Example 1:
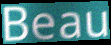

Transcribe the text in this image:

Beau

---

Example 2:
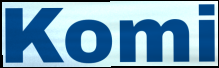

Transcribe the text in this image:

Komi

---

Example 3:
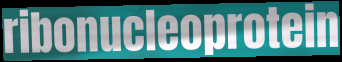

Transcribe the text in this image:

ribonucleoprotein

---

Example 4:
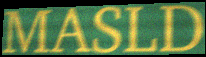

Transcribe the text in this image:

MASLD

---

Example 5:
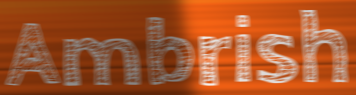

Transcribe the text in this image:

Ambrish